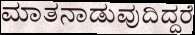
ಮಾತನಾಡುವುದಿದ್ದರೆ